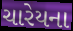
ચારેયના